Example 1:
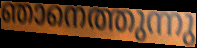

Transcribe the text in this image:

ഞാനെത്തുന്നു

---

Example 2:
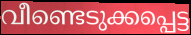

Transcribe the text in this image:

വീണ്ടെടുക്കപ്പെട്ട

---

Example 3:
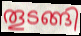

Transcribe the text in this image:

തൂടങ്ങി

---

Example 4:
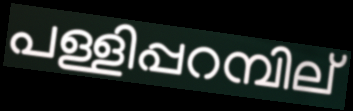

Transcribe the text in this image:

പള്ളിപ്പറമ്പില്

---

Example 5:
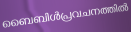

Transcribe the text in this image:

ബൈബിൾപ്രവചനത്തിൽ